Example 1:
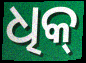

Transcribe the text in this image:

ଧିକ୍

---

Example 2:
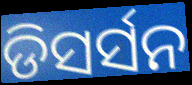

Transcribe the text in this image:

ଡିସର୍ସନ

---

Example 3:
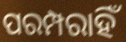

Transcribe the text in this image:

ପରମ୍ପରାହିଁ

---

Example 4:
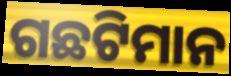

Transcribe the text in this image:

ଗଛଟିମାନ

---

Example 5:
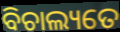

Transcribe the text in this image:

ବିଚାଲ୍ୟତେ